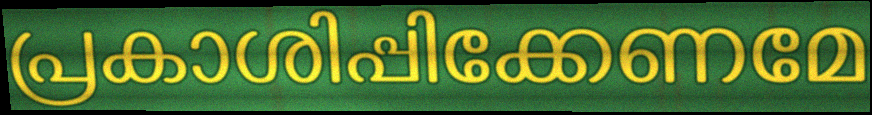
പ്രകാശിപ്പിക്കേണമേ